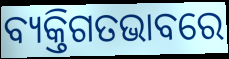
ବ୍ୟକ୍ତିଗତଭାବରେ